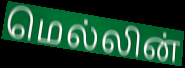
மெல்லின்